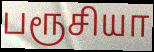
பரூசியா